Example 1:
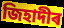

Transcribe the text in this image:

জিহাদীৰ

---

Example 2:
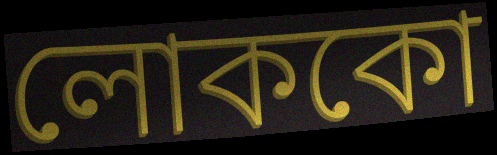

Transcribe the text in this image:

লোককো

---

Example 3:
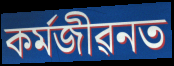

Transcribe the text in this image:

কৰ্মজীৱনত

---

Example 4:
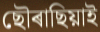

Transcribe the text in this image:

ছৌৰাছিয়াই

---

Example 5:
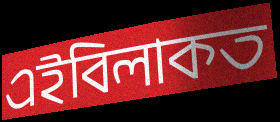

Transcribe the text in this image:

এইবিলাকত